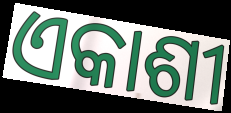
ଏକାଶୀ